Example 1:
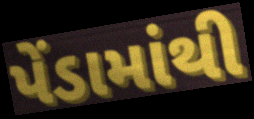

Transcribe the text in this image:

પેંડામાંથી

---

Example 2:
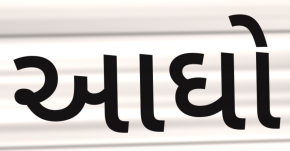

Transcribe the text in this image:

આઘો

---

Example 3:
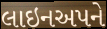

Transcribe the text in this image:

લાઇનઅપને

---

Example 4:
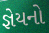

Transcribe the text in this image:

જ્ઞેયનો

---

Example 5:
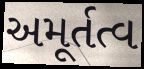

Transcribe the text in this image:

અમૂર્તત્વ